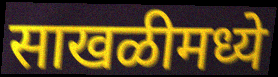
साखळीमध्ये